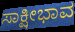
ಸಾಕ್ಷೀಭಾವ